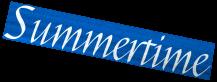
Summertime